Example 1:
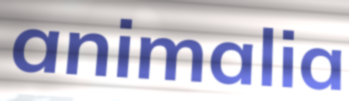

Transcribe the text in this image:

animalia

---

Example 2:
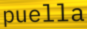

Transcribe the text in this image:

puella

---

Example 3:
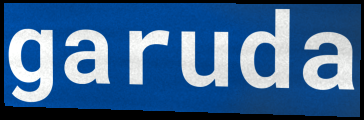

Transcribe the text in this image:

garuda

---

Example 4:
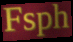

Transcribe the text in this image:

Fsph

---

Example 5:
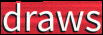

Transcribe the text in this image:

draws